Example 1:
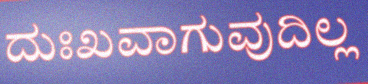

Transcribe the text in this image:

ದುಃಖವಾಗುವುದಿಲ್ಲ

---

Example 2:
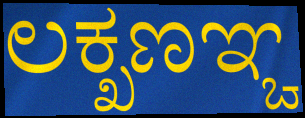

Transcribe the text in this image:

ಲಕ್ಖಣಞ್ಚ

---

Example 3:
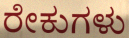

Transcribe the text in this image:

ರೇಕುಗಳು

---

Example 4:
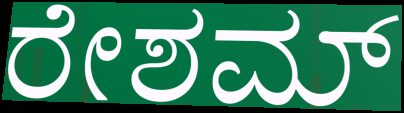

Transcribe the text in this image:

ರೇಶಮ್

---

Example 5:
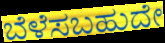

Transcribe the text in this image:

ಬೆಳೆಸಬಹುದೇ